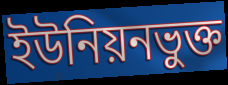
ইউনিয়নভুক্ত